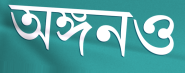
অঙ্গনও